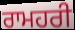
ਰਾਮਹਰੀ